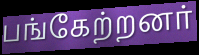
பங்கேற்றனர்